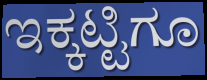
ಇಕ್ಕಟ್ಟಿಗೂ